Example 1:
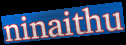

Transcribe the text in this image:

ninaithu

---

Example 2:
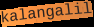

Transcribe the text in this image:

kalangalil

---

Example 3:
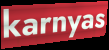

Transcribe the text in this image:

karnyas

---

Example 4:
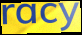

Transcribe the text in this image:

racy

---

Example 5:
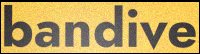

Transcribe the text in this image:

bandive